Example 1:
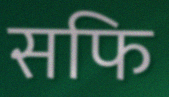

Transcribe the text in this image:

सफि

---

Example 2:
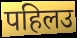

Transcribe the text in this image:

पहिलउ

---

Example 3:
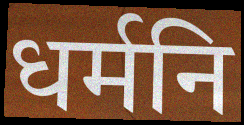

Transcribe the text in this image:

धर्मनि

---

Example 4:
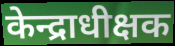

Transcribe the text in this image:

केन्द्राधीक्षक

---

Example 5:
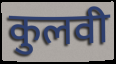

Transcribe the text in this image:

कुलवी